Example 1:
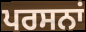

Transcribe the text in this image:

ਪਰਸਨਾਂ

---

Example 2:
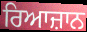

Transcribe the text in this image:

ਰਿਆਜ਼ਾਨ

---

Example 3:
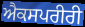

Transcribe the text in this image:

ਐਕਸਪਰੀਰੀ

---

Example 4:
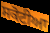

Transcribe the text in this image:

ਸਕੋਟੀਆ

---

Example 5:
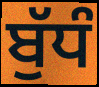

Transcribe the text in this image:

ਬੁੱਧੰ